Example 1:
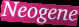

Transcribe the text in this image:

Neogene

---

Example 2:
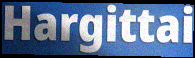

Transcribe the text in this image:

Hargittai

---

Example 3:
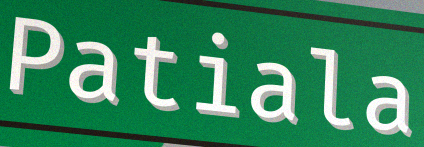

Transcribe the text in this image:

Patiala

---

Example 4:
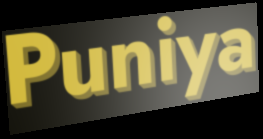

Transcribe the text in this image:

Puniya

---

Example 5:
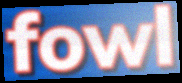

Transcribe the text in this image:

fowl